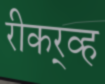
रीकर्व्ह